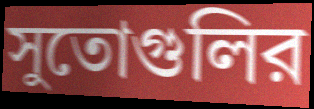
সুতোগুলির